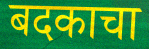
बदकाचा